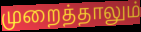
முறைத்தாலும்